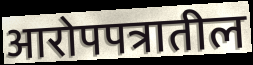
आरोपपत्रातील